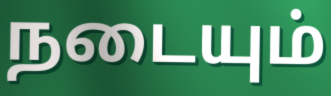
நடையும்